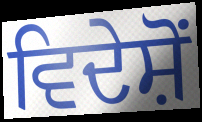
ਵਿਦੇਸ਼ੋਂ